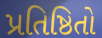
પ્રતિષ્ઠિતો